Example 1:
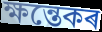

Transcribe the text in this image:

ক্ষন্তেকৰ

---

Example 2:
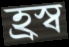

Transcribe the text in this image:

হ্ৰস্ব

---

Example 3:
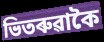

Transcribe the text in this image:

ভিতৰুৱাকৈ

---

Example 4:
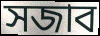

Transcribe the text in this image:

সজাব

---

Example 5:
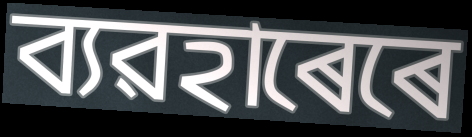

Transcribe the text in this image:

ব্যৱহাৰেৰে